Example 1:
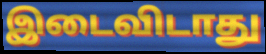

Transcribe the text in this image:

இடைவிடாது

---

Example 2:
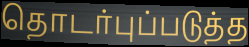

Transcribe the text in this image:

தொடர்புப்படுத்த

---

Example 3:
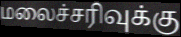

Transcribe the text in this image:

மலைச்சரிவுக்கு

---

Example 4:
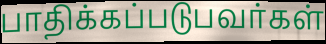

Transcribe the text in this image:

பாதிக்கப்படுபவர்கள்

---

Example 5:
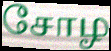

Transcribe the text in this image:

சோழ